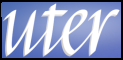
uter